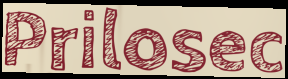
Prilosec